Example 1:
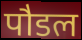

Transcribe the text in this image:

पौडल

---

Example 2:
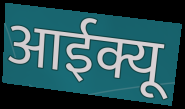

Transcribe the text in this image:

आईक्यू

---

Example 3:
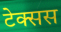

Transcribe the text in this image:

टेक्सस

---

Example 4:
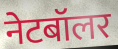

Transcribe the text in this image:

नेटबॉलर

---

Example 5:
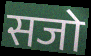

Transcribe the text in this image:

सजो